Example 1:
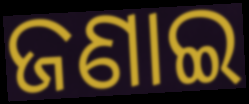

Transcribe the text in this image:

ଜଣାଇ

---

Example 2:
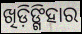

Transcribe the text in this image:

ଖିଡ଼ିଙ୍ଗିହାର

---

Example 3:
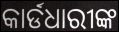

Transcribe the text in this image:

କାର୍ଡଧାରୀଙ୍କ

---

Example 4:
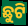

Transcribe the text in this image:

ଛୁଟି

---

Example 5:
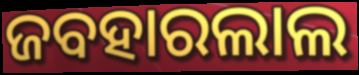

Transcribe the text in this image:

ଜବହାରଲାଲ